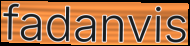
fadanvis